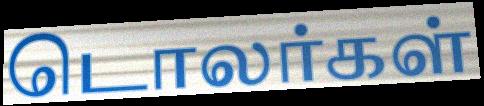
டொலர்கள்